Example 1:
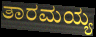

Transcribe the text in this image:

ತಾರಮಯ್ಯ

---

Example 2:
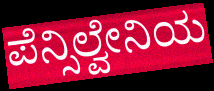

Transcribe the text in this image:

ಪೆನ್ಸಿಲ್ವೇನಿಯ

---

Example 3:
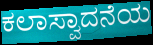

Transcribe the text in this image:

ಕಲಾಸ್ವಾದನೆಯ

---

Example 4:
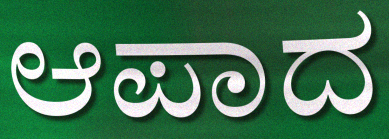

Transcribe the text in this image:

ಆಪಾದ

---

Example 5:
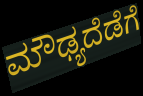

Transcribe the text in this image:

ಮೌಢ್ಯದೆಡೆಗೆ